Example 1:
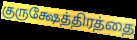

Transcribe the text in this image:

குருக்ஷேத்திரத்தை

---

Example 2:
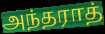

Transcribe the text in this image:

அந்தராத்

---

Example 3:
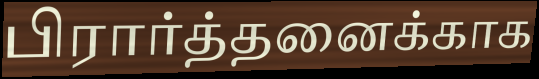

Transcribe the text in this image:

பிரார்த்தனைக்காக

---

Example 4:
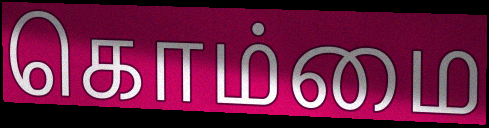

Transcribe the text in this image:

கொம்மை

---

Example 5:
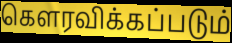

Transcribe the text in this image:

கௌரவிக்கப்படும்